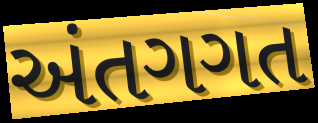
અંતગગત